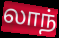
லாந்